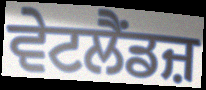
ਵੇਟਲੈਂਡਜ਼